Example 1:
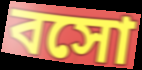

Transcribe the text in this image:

বসো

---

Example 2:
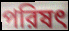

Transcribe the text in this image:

পরিষৎ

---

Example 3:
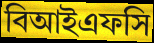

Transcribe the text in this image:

বিআইএফসি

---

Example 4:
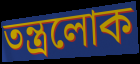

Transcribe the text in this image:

তন্ত্রলোক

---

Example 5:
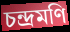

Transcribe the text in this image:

চন্দ্রমণি